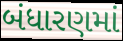
બંધારણમાં